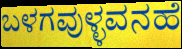
ಬಳಗವುಳ್ಳವನಹೆ